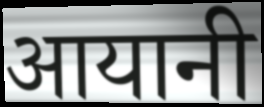
आयानी